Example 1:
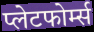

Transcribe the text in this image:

प्लेटफोर्म्स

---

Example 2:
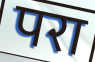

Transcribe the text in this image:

परा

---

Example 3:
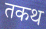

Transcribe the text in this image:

तकथ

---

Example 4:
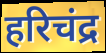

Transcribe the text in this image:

हरिचंद्र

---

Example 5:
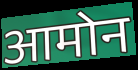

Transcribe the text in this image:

आमोन